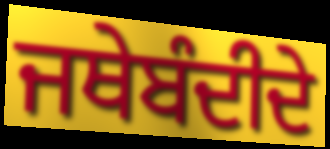
ਜਥੇਬੰਦੀਦੇ